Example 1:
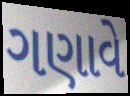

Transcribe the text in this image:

ગણાવે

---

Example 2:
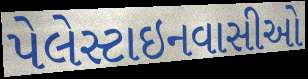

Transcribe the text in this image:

પેલેસ્ટાઇનવાસીઓ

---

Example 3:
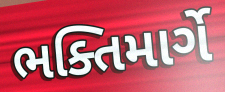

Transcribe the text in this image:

ભક્તિમાર્ગે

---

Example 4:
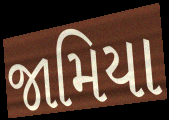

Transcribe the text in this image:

જામિયા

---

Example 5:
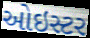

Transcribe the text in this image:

ઓઇસ્ટર